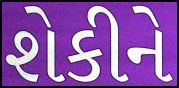
શેકીને